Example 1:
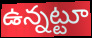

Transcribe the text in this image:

ఉన్నట్టూ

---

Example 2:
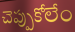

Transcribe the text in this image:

చెప్పుకోలేం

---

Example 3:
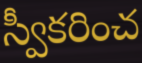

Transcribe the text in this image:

స్వీకరించ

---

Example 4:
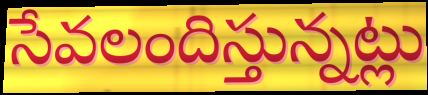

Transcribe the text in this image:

సేవలందిస్తున్నట్లు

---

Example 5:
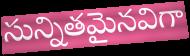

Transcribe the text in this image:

సున్నితమైనవిగా